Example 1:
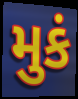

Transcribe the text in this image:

મુકં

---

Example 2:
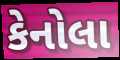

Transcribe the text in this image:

કેનોલા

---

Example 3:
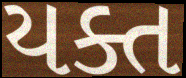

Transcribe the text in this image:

યક્ત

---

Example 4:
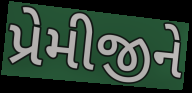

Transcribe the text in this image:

પ્રેમીજીને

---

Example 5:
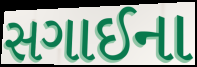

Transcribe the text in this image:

સગાઈના